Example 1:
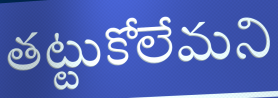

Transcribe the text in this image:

తట్టుకోలేమని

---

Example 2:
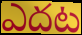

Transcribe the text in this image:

ఎదట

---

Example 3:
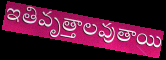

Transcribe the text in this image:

ఇతివృత్తాలవుతాయి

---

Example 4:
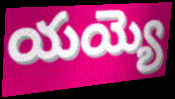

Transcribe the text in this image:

యయ్యె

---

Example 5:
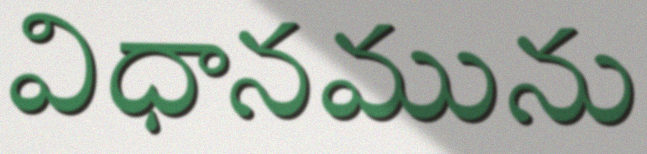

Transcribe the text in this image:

విధానమును